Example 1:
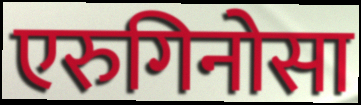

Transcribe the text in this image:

एरुगिनोसा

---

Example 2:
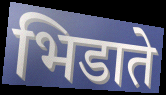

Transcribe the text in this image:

भिडाते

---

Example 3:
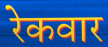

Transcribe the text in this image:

रेकवार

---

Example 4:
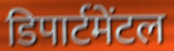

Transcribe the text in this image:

डिपार्टमेंटल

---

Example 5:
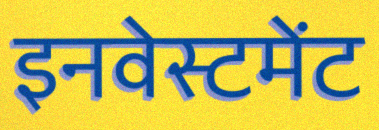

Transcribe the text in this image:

इनवेस्टमेंट